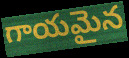
గాయమైన